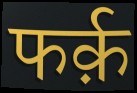
फर्क़